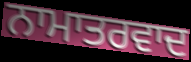
ਨਾਮਾਤਰਵਾਦ